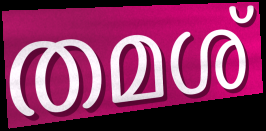
തമശ്